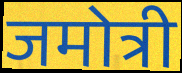
जमोत्री